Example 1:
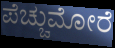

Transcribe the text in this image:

ಪೆಚ್ಚುಮೋರೆ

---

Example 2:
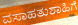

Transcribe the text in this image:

ವಸಾಹತುಶಾಹಿಗೆ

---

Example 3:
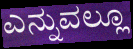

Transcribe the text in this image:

ಎನ್ನುವಲ್ಲೂ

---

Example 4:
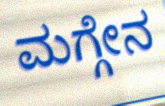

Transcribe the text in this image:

ಮಗ್ಗೇನ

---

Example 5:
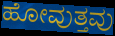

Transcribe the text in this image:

ಹೋವುತ್ತವು